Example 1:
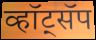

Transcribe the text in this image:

व्हॉट्सॅप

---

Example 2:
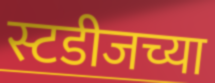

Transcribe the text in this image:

स्टडीजच्या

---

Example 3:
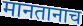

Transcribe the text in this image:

मानतानाच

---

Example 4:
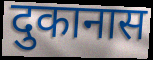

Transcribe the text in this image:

दुकानास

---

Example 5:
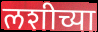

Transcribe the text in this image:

लशीच्या